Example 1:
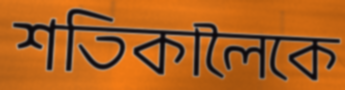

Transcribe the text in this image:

শতিকালৈকে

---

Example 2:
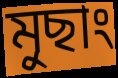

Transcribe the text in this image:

মুছাং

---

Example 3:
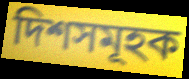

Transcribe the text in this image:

দিশসমূহক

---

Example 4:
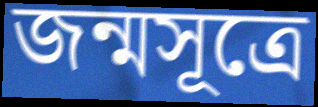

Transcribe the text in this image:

জন্মসূত্ৰে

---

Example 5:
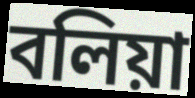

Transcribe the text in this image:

বলিয়া